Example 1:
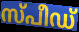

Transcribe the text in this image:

സ്പീഡ്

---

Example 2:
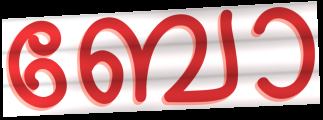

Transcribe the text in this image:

ബോ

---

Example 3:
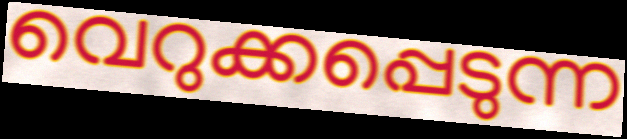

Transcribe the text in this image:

വെറുക്കപ്പെടുന്ന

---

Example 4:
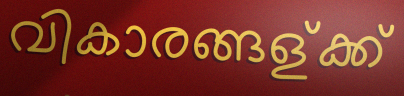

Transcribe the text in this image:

വികാരങ്ങള്ക്ക്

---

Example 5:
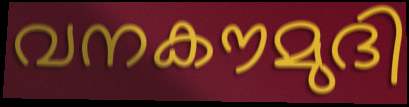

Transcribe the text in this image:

വനകൗമുദി